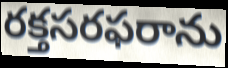
రక్తసరఫరాను